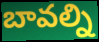
బావల్ని